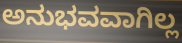
ಅನುಭವವಾಗಿಲ್ಲ